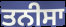
ਤਨੀਸਾ